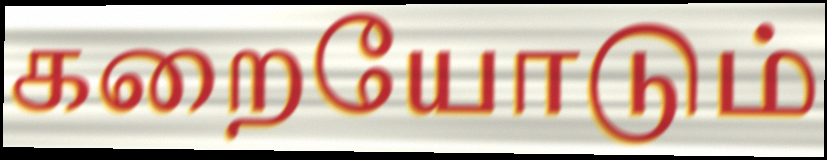
கறையோடும்